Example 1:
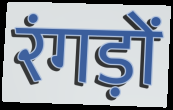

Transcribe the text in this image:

रंगड़ों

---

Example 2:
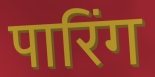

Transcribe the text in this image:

पारिंग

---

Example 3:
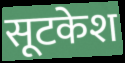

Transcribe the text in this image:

सूटकेश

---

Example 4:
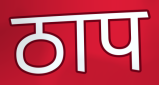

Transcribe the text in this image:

ठाप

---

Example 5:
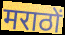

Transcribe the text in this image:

मराठों